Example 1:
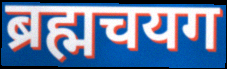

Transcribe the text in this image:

ब्रह्मचयग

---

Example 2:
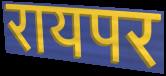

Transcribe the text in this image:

रायपर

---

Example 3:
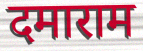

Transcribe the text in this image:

दमाराम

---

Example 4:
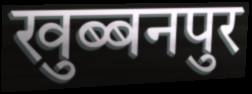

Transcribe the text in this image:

खुब्बनपुर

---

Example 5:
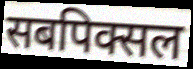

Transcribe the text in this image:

सबपिक्सल